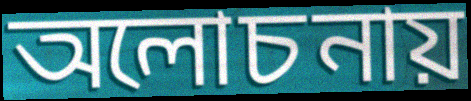
অলোচনায়